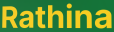
Rathina